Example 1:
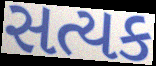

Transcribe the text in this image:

સત્યક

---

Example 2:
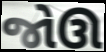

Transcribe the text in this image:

જોઊ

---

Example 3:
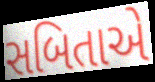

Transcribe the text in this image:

સબિતાએ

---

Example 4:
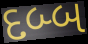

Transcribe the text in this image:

દબ્બ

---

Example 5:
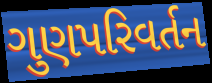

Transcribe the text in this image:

ગુણપરિવર્તન